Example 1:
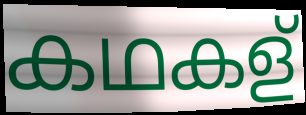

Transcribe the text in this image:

കഥകള്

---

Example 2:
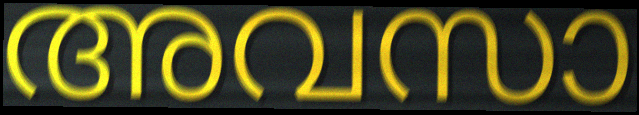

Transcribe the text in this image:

അവസാ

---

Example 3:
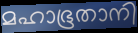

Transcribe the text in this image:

മഹാഭൂതാനി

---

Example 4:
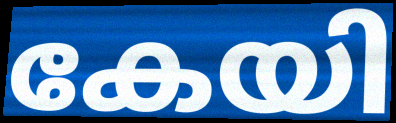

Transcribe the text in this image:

കേയി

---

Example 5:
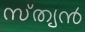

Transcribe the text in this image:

സ്‌ത്യൻ